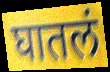
घातलं